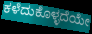
ಕಳೆದುಕೊಳ್ಳದೆಯೇ